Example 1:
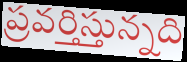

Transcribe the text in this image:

ప్రవర్తిస్తున్నది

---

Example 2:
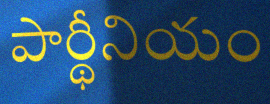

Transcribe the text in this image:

పార్థీనియం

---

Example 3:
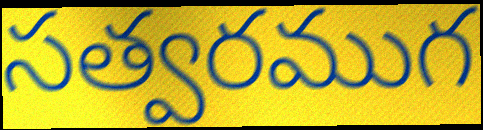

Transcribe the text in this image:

సత్వరముగ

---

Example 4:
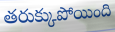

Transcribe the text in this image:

తరుక్కుపోయింది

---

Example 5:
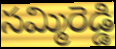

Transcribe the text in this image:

సమ్మిరెడ్డి